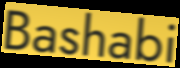
Bashabi